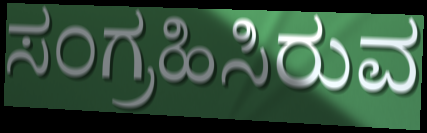
ಸಂಗ್ರಹಿಸಿರುವ